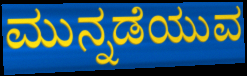
ಮುನ್ನಡೆಯುವ